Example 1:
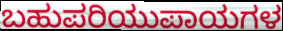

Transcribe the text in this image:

ಬಹುಪರಿಯುಪಾಯಗಳ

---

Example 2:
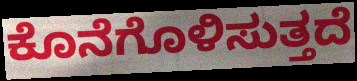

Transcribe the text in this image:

ಕೊನೆಗೊಳಿಸುತ್ತದೆ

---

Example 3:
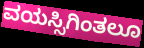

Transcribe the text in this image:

ವಯಸ್ಸಿಗಿಂತಲೂ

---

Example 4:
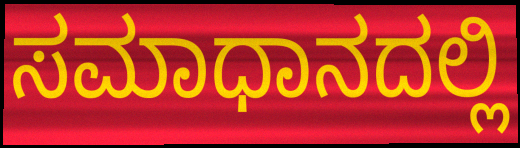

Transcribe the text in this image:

ಸಮಾಧಾನದಲ್ಲಿ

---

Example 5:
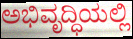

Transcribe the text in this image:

ಅಭಿವೃದ್ಧಿಯಲ್ಲಿ